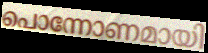
പൊന്നോണമായി